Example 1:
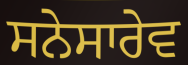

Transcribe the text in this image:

ਸਨੇਸਾਰੇਵ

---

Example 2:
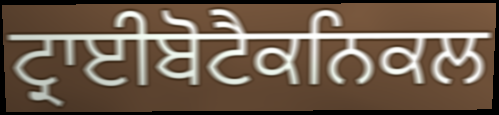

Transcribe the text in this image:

ਟ੍ਰਾਈਬੋਟੈਕਨਿਕਲ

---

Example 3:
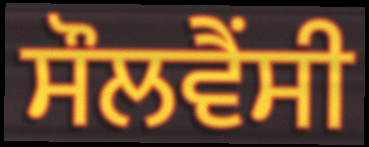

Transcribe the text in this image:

ਸੌਲਵੈਂਸੀ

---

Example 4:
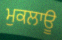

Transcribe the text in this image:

ਮੁਕਲਾਊ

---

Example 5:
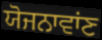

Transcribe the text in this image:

ਯੋਜਨਾਵਾਂਣ